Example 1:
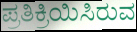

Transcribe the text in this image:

ಪ್ರತಿಕ್ರಿಯಿಸಿರುವ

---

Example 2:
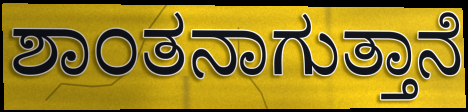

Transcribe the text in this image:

ಶಾಂತನಾಗುತ್ತಾನೆ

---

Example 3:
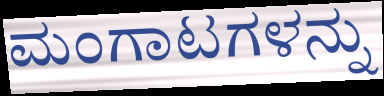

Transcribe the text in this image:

ಮಂಗಾಟಗಳನ್ನು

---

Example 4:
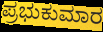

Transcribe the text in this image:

ಪ್ರಭುಕುಮಾರ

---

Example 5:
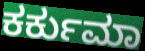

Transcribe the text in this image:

ಕರ್ಕುಮಾ